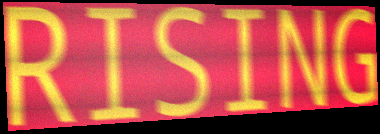
RISING